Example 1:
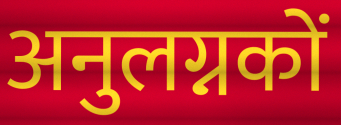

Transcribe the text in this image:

अनुलग्नकों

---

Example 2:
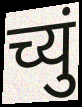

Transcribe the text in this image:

च्युं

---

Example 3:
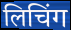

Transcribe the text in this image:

लिचिंग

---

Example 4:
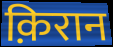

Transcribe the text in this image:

क़िरान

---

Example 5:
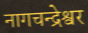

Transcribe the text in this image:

नागचन्द्रेश्वर